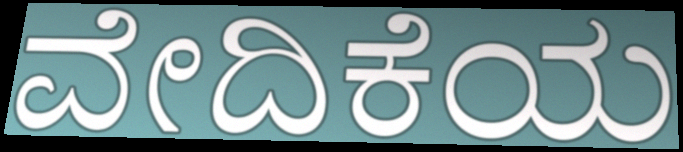
ವೇದಿಕೆಯ